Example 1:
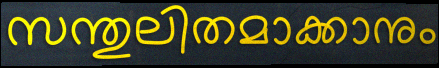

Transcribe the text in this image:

സന്തുലിതമാക്കാനും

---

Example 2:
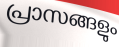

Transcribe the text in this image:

പ്രാസങ്ങളും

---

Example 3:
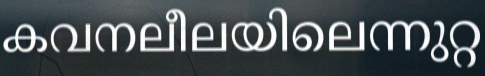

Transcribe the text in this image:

കവനലീലയിലെന്നുറ്റ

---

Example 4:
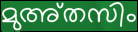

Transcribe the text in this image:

മുഅ്തസിം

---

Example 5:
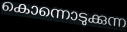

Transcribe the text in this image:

കൊന്നൊടുക്കുന്ന